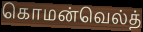
கொமன்வெல்த்